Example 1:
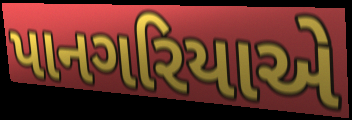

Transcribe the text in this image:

પાનગરિયાએ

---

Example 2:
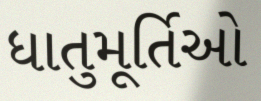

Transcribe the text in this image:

ધાતુમૂર્તિઓ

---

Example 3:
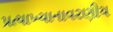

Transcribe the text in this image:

પ્રત્યાખ્યાનાવરણીય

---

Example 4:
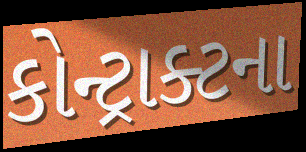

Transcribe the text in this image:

કોન્ટ્રાક્ટના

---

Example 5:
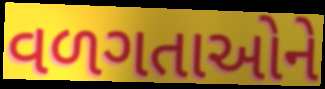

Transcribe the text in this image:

વળગતાઓને